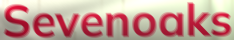
Sevenoaks